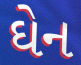
ઘેન